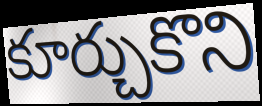
కూర్చుకొని